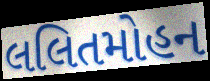
લલિતમોહન